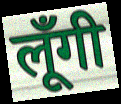
लूँगी